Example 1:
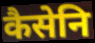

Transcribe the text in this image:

कैसेनि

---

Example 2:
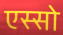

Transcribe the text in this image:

एस्सो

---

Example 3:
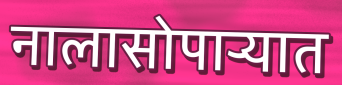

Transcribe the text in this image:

नालासोपाऱ्यात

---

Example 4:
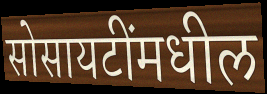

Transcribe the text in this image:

सोसायटींमधील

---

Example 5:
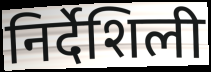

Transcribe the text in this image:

निर्देशिली